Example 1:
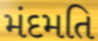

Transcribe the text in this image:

મંદમતિ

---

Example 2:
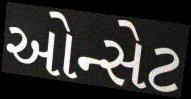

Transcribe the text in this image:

ઓન્સેટ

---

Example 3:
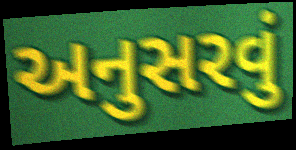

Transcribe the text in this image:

અનુસરવું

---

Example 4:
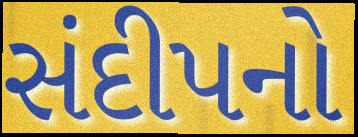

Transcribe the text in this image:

સંદીપનો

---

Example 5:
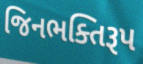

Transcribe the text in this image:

જિનભક્તિરૂપ